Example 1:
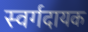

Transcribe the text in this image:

स्वर्गदायक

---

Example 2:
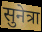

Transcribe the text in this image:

सुनेत्रा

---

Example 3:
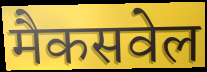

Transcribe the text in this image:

मैकसवेल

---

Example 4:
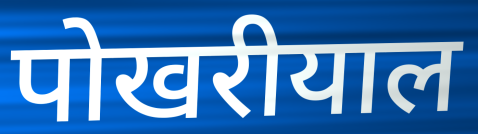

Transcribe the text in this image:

पोखरीयाल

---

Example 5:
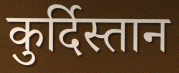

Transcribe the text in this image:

कुर्दिस्तान